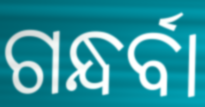
ଗନ୍ଧର୍ବା